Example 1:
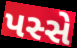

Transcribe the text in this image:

પસ્સે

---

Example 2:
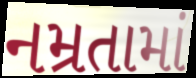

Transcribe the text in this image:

નમ્રતામાં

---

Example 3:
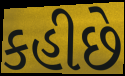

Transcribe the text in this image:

કહીછે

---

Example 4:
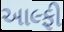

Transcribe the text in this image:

આલ્ફી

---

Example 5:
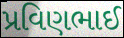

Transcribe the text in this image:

પ્રવિણભાઈ